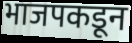
भाजपकडून